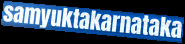
samyuktakarnataka